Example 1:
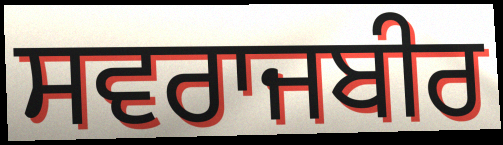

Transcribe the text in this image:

ਸਵਰਾਜਬੀਰ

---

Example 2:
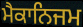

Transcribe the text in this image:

ਮੈਕਾਨਿਜਮ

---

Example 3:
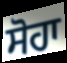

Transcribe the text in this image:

ਸੋਹਾ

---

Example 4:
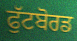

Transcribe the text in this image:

ਫੁੱਟਬੋਰਡ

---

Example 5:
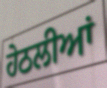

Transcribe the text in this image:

ਹੇਠਲੀਆਂ